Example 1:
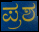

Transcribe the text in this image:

ಪ್ರಶ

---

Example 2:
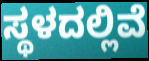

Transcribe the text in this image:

ಸ್ಥಳದಲ್ಲಿವೆ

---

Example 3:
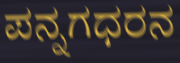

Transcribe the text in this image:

ಪನ್ನಗಧರನ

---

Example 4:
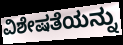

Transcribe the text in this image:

ವಿಶೇಷತೆಯನ್ನು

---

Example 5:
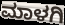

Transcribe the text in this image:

ಮಾಳಗಿ